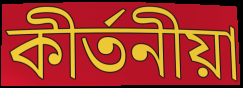
কীর্তনীয়া